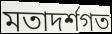
মতাদর্শগত